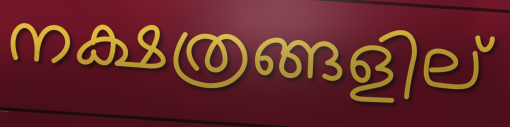
നക്ഷത്രങ്ങളില്